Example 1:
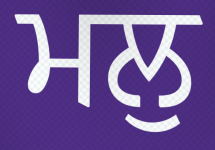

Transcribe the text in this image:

ਮਲੁ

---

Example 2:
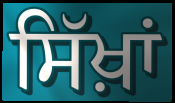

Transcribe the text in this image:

ਸਿੱਖ਼ਾਂ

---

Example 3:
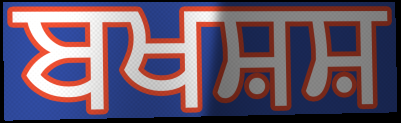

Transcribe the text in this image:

ਬਖਸ਼ਸ਼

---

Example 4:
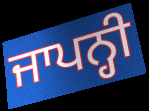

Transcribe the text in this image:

ਜਾਪਨ੍ਹੀ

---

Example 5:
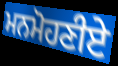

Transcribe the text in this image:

ਮਨਮੋਹਣੀਏ